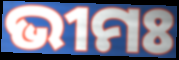
ଭୀମଃ